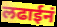
लढाईनं